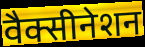
वैक्सीनेशन